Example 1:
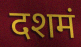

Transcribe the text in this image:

दशमं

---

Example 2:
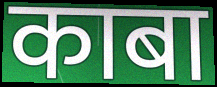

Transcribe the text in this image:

काबा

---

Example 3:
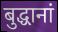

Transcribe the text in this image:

बुद्धानां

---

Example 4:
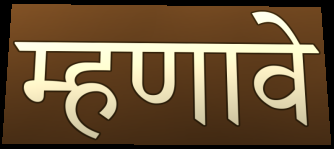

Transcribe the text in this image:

म्हणावे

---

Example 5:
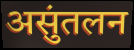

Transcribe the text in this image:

असुंतलन